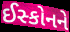
ઈસ્કોનને